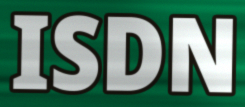
ISDN